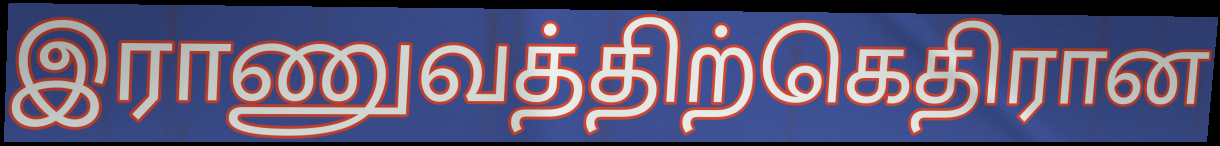
இராணுவத்திற்கெதிரான